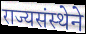
राज्यसंस्थेने